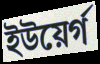
ইউয়ের্গ